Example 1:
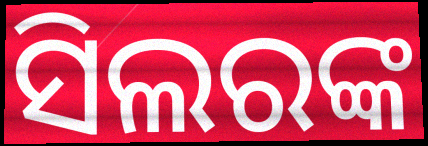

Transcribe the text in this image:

ସିଲରଙ୍କ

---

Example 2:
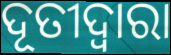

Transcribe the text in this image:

ଦୂତୀଦ୍ୱାରା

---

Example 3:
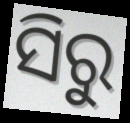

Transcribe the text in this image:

ସିରୁ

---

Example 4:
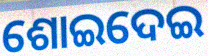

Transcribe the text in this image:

ଶୋଇଦେଇ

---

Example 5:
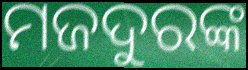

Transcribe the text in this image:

ମଜଦୁରଙ୍କ